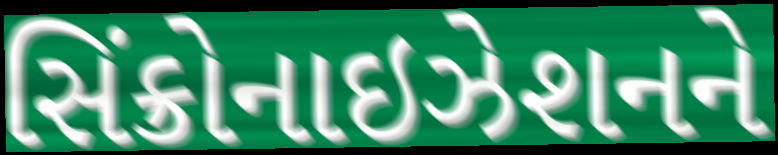
સિંક્રોનાઇઝેશનને